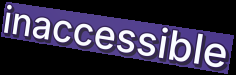
inaccessible